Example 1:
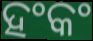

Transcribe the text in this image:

ହଂକଂ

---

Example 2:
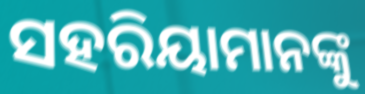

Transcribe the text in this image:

ସହରିୟାମାନଙ୍କୁ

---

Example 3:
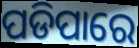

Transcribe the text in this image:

ପଡିପାରେ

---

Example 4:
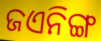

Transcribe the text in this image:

ଜଏନିଙ୍ଗ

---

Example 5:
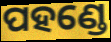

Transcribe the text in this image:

ପହଣ୍ଡେ